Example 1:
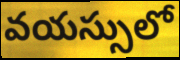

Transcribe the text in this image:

వయస్సులో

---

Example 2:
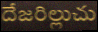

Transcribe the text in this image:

దేజరిల్లుచు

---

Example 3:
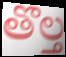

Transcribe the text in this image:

తొల్త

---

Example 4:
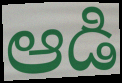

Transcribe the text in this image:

ఆడి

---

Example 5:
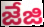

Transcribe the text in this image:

జేజి